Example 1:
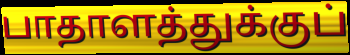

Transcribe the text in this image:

பாதாளத்துக்குப்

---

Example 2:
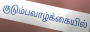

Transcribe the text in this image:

குடும்பவாழ்க்கையில்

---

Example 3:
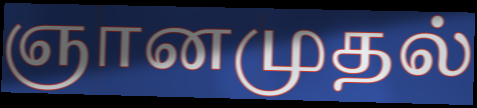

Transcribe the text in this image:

ஞானமுதல்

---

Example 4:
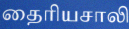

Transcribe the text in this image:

தைரியசாலி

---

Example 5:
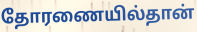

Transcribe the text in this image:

தோரணையில்தான்